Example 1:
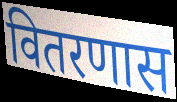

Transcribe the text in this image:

वितरणास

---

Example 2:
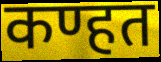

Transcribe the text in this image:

कण्हत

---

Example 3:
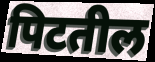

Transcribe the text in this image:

पिटतील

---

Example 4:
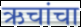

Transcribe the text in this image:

ऋचांचा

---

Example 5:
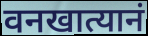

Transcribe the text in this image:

वनखात्यानं